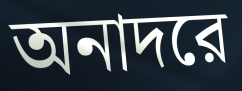
অনাদরে